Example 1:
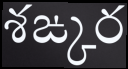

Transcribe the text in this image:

శఙ్కర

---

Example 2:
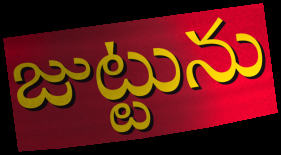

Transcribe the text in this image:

జుట్టును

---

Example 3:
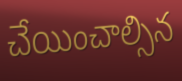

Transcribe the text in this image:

చేయించాల్సిన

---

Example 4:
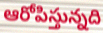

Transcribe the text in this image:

ఆరోపిస్తున్నది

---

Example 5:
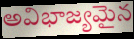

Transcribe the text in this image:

అవిభాజ్యమైన